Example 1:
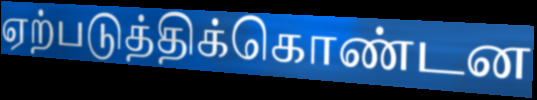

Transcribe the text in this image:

ஏற்படுத்திக்கொண்டன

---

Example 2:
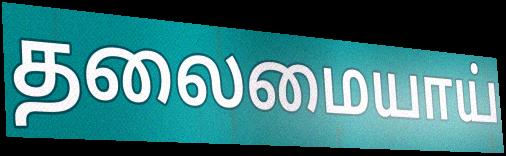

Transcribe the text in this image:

தலைமையாய்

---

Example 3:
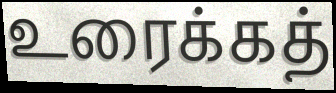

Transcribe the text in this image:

உரைக்கத்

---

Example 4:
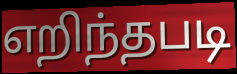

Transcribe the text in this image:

எறிந்தபடி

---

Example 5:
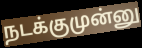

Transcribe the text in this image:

நடக்குமுன்னு